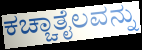
ಕಚ್ಚಾತೈಲವನ್ನು